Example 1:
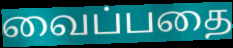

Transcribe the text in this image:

வைப்பதை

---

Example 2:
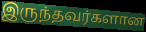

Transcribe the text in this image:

இருந்தவர்களான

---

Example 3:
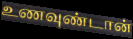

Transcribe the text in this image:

உணவுண்டான்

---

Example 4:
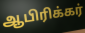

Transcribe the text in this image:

ஆபிரிக்கர்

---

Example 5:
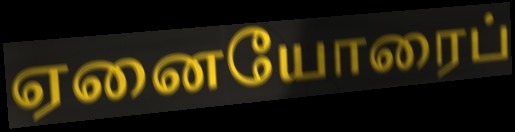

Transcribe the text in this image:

ஏனையோரைப்